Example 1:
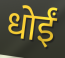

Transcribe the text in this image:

धोईं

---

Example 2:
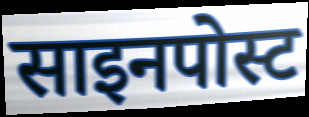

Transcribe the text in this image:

साइनपोस्ट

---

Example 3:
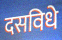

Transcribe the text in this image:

दसविधे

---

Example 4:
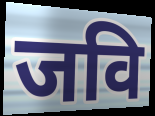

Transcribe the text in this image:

जवि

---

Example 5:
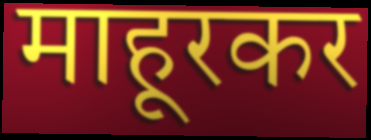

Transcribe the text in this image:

माहूरकर